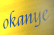
okanye